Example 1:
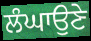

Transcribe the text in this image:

ਲੰਘਾਉਣੇ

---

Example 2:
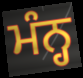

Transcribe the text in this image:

ਮੰਨ੍ਹ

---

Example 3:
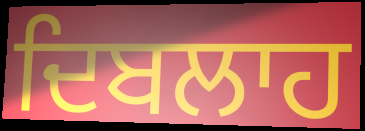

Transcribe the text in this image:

ਦਿਬਲਾਹ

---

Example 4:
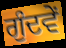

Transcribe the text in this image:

ਗੁੰਦਵੇਂ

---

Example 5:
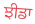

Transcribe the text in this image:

ਝੀਡਾ